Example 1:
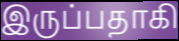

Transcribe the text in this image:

இருப்பதாகி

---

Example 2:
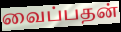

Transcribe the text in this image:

வைப்பதன்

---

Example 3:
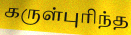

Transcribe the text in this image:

கருள்புரிந்த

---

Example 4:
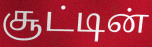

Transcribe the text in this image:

சூட்டின்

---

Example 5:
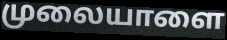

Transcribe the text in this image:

முலையாளை